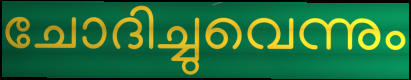
ചോദിച്ചുവെന്നും